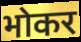
भोकर